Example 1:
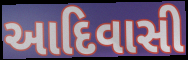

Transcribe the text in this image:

આદિવાસી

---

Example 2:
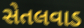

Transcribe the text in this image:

સેતલવાડ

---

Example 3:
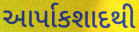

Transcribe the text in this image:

આર્પાકશાદથી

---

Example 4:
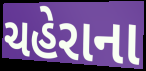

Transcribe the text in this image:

ચહેરાના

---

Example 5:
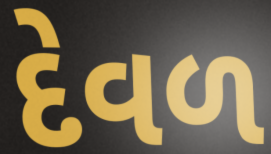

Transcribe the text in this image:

દેવળ